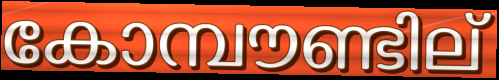
കോമ്പൗണ്ടില്